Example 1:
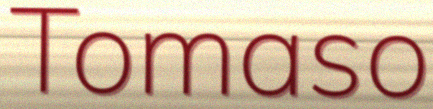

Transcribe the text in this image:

Tomaso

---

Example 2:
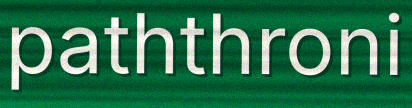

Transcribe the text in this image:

paththroni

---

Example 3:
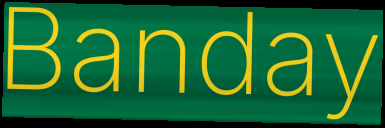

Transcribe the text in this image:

Banday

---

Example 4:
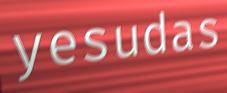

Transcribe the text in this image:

yesudas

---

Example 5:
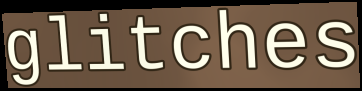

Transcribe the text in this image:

glitches